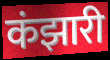
कंझारी